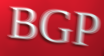
BGP